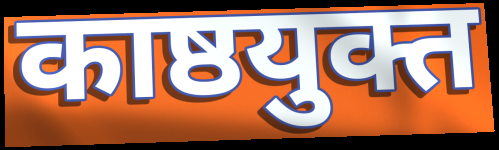
काष्ठयुक्त